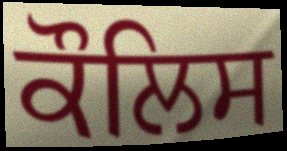
ਕੌਲਿਸ